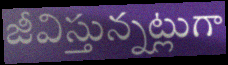
జీవిస్తున్నట్లుగా